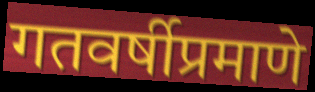
गतवर्षीप्रमाणे